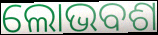
ଲୋଭବଶ